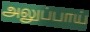
அலுப்பாய்